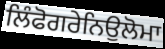
ਲਿੰਫੋਗਰੇਨਿਉਲੋਮਾ